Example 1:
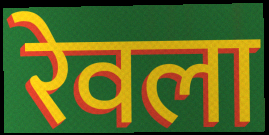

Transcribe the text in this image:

रेवला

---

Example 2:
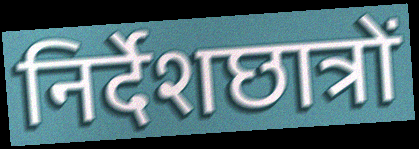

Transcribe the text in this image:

निर्देशछात्रों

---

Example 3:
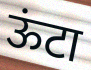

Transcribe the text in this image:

ऊंटा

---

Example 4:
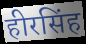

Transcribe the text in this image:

हीरसिंह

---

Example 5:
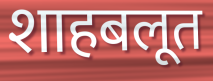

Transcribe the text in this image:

शाहबलूत